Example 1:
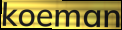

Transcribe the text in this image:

koeman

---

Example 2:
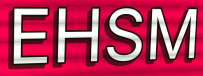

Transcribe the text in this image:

EHSM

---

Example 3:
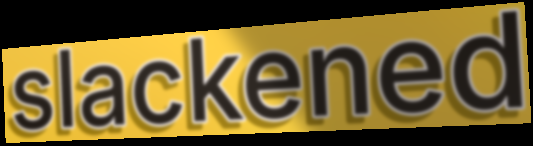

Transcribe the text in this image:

slackened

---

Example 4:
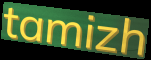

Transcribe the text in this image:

tamizh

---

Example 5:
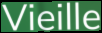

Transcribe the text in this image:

Vieille